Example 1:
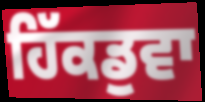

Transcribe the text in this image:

ਹਿੱਕਡੁਵਾ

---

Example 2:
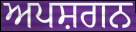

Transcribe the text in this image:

ਅਪਸ਼ਗਨ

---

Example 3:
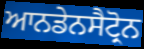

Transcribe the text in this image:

ਆਨਡੇਨਸੈਟ੍ਰੋਨ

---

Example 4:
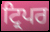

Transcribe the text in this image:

ਟ੍ਰਿਪਰ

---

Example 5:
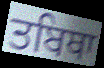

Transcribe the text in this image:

ਤਬਿਥਾ